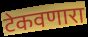
टेकवणारा